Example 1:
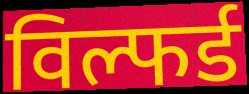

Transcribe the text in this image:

विल्फर्ड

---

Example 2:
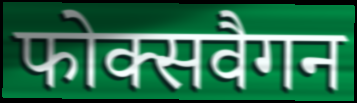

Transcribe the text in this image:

फोक्सवैगन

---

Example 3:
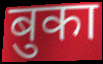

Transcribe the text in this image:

बुका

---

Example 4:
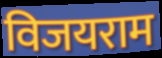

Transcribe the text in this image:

विजयराम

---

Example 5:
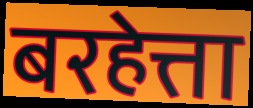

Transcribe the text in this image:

बरहेत्ता